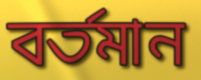
বর্তমান